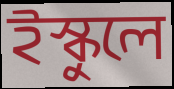
ইস্কুলে